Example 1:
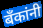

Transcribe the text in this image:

बॅंकांनी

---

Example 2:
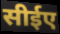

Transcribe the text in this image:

सीईए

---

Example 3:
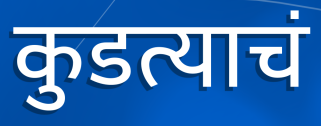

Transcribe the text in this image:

कुडत्याचं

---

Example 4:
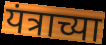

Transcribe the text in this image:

यंत्राच्या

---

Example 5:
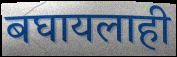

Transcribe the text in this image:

बघायलाही